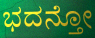
ಭದನ್ತೋ